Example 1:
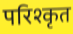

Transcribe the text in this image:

परिश्कृत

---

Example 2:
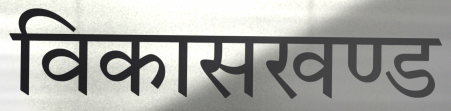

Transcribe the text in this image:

विकासखण्‍ड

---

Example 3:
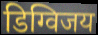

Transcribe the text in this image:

डिग्विजय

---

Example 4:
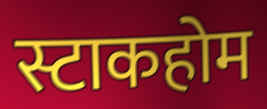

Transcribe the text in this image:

स्टाकहोम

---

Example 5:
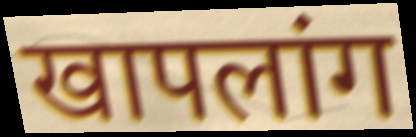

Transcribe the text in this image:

खापलांग